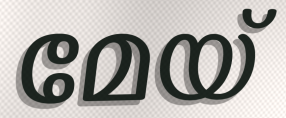
മേയ്